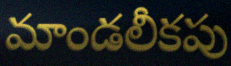
మాండలీకపు